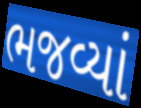
ભજવ્યાં